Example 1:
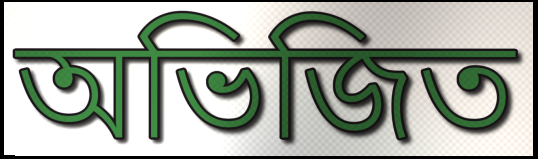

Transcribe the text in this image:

অভিজিত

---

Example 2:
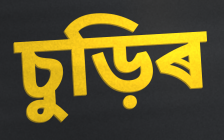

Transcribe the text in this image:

চুড়িৰ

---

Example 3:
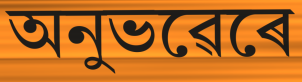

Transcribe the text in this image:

অনুভৱেৰে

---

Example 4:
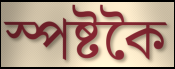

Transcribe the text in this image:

স্পষ্টকৈ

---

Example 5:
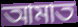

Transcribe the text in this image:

আমাত